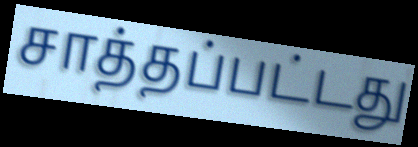
சாத்தப்பட்டது